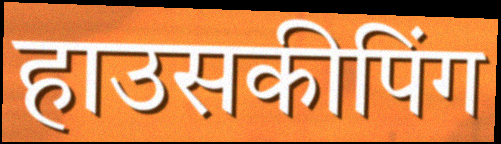
हाउसकीपिंग